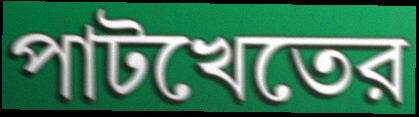
পাটখেতের